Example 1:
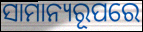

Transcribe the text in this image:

ସାମାନ୍ୟରୂପରେ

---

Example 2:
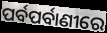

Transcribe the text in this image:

ପର୍ବପର୍ବାଣୀରେ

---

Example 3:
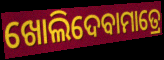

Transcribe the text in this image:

ଖୋଲିଦେବାମାତ୍ରେ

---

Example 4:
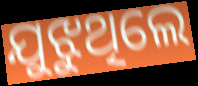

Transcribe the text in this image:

ଯୁଝୁଥିଲେ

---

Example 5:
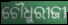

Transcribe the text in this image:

ଚୌଧୁରୀଜୀ